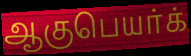
ஆகுபெயர்க்